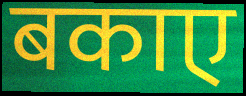
बकाए